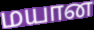
மயான